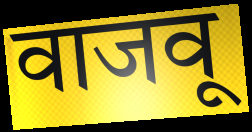
वाजवू